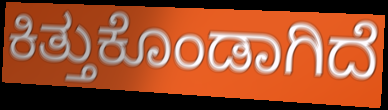
ಕಿತ್ತುಕೊಂಡಾಗಿದೆ